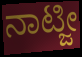
ನಾಟ್ಜೀ